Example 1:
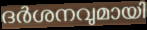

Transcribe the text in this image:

ദർശനവുമായി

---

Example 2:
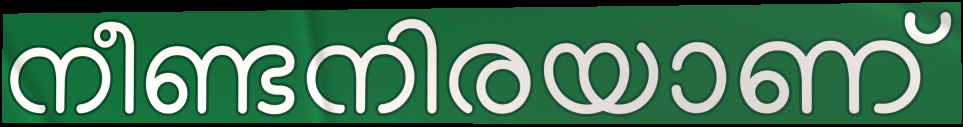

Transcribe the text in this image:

നീണ്ടനിരയാണ്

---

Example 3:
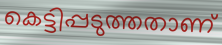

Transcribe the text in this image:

കെട്ടിപ്പടുത്തതാണ്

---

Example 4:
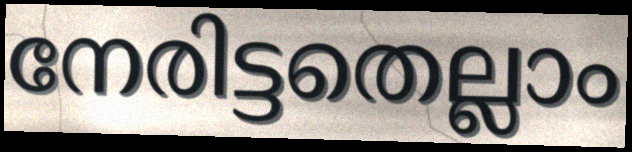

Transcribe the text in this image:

നേരിട്ടതെല്ലാം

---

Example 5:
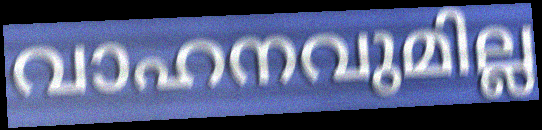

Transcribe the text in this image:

വാഹനവുമില്ല